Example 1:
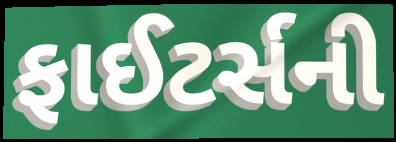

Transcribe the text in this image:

ફાઈટર્સની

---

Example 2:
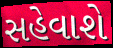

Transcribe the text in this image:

સહેવાશે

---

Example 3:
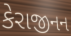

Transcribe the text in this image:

કેરાજીનન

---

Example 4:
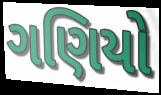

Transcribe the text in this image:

ગણિયો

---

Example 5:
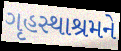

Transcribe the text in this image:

ગૃહસ્થાશ્રમને